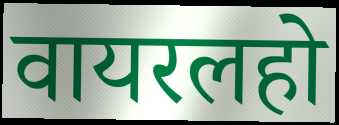
वायरलहो